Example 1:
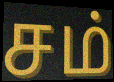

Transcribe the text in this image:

சம்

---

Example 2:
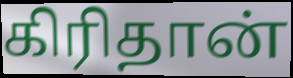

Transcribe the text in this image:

கிரிதான்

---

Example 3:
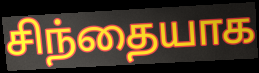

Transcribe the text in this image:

சிந்தையாக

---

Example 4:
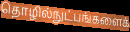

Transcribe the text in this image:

தொழில்நுட்பங்களைக்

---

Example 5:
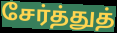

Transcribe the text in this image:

சேர்த்துத்